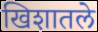
खिशातले